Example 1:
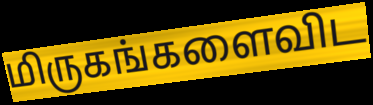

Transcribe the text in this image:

மிருகங்களைவிட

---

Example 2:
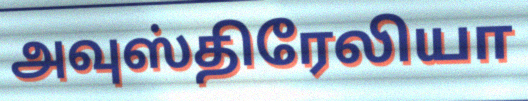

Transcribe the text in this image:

அவுஸ்திரேலியா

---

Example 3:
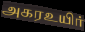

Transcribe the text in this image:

அகரஉயிர்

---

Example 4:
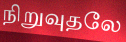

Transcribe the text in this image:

நிறுவுதலே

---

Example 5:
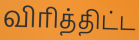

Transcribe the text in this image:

விரித்திட்ட